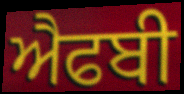
ਐਫਬੀ